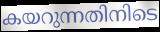
കയറുന്നതിനിടെ